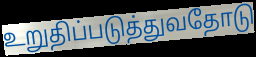
உறுதிப்படுத்துவதோடு